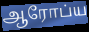
ஆரோப்ய